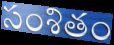
సంశితం